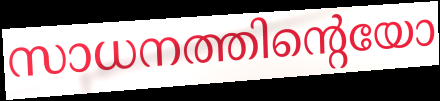
സാധനത്തിന്റെയോ